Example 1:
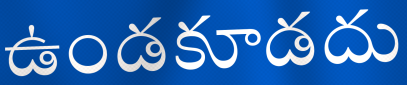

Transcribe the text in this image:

ఉండకూడదు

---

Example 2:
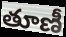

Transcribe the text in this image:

తూణీ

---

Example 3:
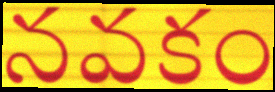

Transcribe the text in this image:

నవకం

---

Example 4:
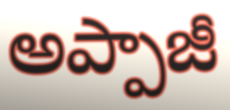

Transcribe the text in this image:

అప్పాజీ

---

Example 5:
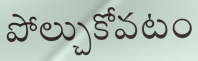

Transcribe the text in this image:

పోల్చుకోవటం